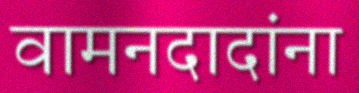
वामनदादांना